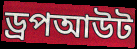
ড্রপআউট